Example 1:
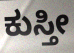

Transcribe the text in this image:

ಕುಸ್ತೀ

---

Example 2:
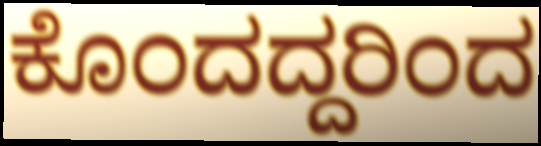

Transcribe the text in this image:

ಕೊಂದದ್ದರಿಂದ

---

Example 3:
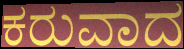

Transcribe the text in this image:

ಕರುವಾದ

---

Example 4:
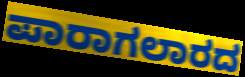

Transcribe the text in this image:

ಪಾರಾಗಲಾರದ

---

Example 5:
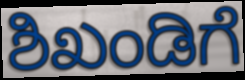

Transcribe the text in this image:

ಶಿಖಂಡಿಗೆ